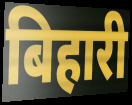
बिहारी